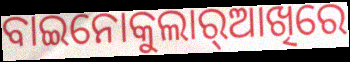
ବାଇନୋକୁଲାର୍‌ଆଖିରେ